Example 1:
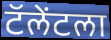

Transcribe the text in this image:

टॅलेंटला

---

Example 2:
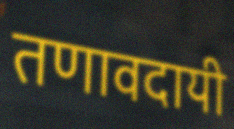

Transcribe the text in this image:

तणावदायी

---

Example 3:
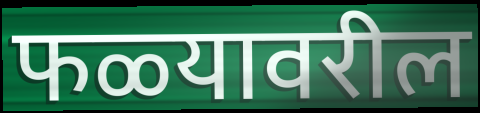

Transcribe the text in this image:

फळ्यावरील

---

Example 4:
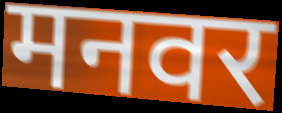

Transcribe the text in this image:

मनवर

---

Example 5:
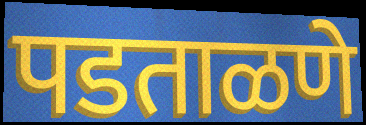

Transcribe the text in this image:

पडताळणे